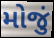
મોજું